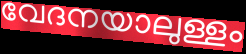
വേദനയാലുള്ളം